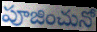
పూజించునో